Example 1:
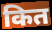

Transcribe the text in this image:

कित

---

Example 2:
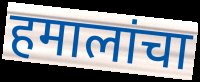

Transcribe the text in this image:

हमालांचा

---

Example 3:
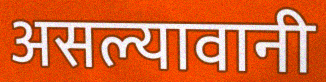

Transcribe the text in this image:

असल्यावानी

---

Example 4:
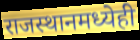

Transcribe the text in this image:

राजस्थानमध्येही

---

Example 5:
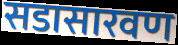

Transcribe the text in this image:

सडासारवण